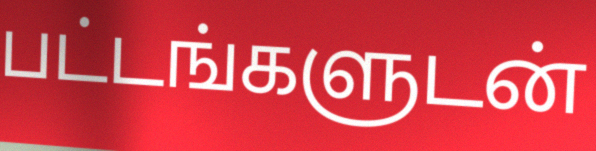
பட்டங்களுடன்